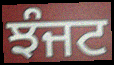
ਝੰਜਟ